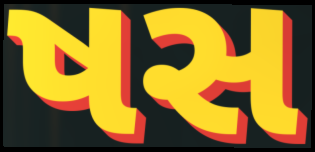
ષસ